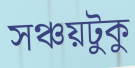
সঞ্চয়টুকু